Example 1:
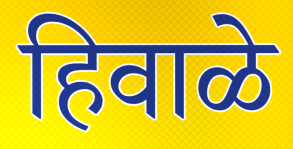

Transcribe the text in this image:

हिवाळे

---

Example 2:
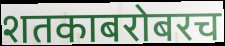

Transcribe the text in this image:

शतकाबरोबरच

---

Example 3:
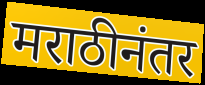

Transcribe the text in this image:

मराठीनंतर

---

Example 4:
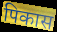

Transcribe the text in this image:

पिकास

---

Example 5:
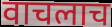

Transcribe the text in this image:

वाचलाच